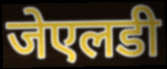
जेएलडी